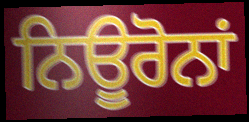
ਨਿਊਰੋਨਾਂ